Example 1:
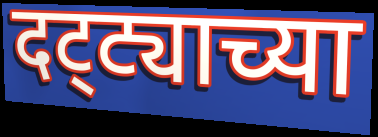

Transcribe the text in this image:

दट्ट्याच्या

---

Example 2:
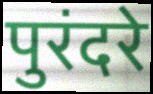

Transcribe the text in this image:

पुरंदरे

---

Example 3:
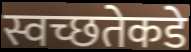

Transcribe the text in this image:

स्वच्छतेकडे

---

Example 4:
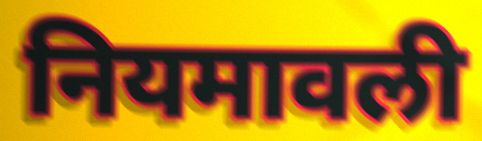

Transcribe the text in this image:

नियमावली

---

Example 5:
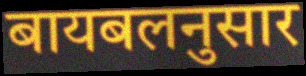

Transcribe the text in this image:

बायबलनुसार